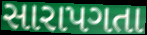
સારાપગતા